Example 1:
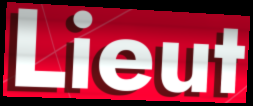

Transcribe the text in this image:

Lieut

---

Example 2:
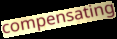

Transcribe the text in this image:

compensating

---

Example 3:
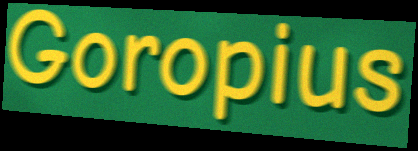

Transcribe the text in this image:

Goropius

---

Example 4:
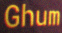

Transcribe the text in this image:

Ghum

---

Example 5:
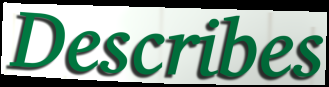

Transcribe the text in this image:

Describes